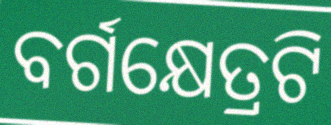
ବର୍ଗକ୍ଷେତ୍ରଟି